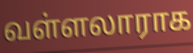
வள்ளலாராக